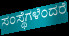
ಸಂಸ್ಥೆಗಳೆಂದರೆ